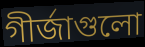
গীর্জাগুলো